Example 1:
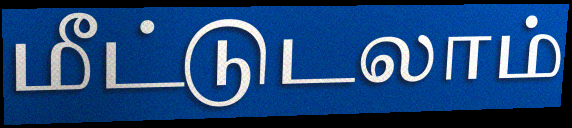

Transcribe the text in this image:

மீட்டுடலாம்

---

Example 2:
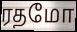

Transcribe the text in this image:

ரதமோ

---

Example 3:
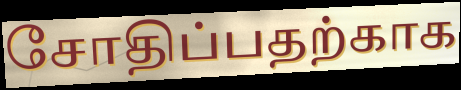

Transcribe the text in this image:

சோதிப்பதற்காக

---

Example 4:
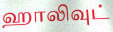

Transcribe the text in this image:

ஹாலிவுட்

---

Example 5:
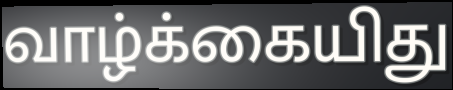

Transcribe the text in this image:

வாழ்க்கையிது